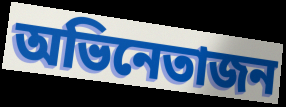
অভিনেতাজন